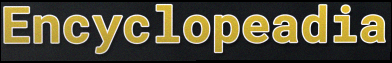
Encyclopeadia